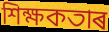
শিক্ষকতাৰ